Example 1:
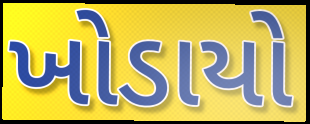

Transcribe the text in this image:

ખોડાયો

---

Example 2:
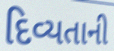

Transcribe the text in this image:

દિવ્યતાની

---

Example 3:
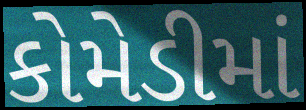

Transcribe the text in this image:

કોમેડીમાં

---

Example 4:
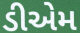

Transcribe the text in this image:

ડીએમ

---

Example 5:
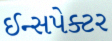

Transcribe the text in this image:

ઈન્સપેક્ટર